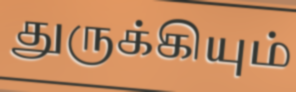
துருக்கியும்